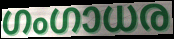
ഗംഗാധര